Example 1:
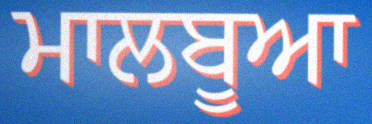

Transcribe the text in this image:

ਮਾਲਬੂਆ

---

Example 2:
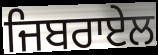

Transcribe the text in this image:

ਜਿਬਰਾਏਲ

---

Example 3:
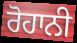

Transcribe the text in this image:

ਰੋਹਾਨੀ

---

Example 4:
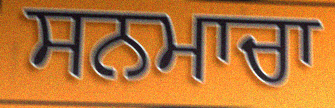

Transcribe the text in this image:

ਸਨਮਾਚਾ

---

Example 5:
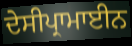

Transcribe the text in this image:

ਦੇਸੀਪ੍ਰਾਮਾਈਨ